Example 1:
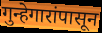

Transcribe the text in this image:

गुन्हेगारांपासून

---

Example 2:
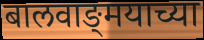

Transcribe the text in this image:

बालवाङ्‌मयाच्या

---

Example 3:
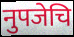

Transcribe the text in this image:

नुपजेचि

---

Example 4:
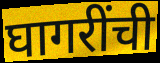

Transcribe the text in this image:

घागरींची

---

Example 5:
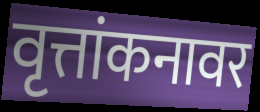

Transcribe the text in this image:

वृत्तांकनावर